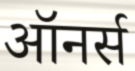
ऑनर्स